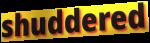
shuddered